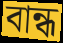
বান্ধ